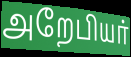
அறேபியர்